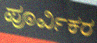
ಪೂರ್ವಿಕರ